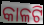
କାଳଟି